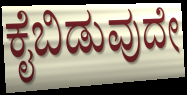
ಕೈಬಿಡುವುದೇ